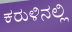
ಕರುಳಿನಲ್ಲಿ